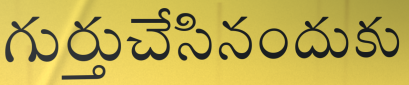
గుర్తుచేసినందుకు